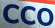
CCO